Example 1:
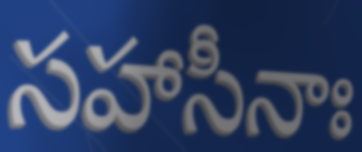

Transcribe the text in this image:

సహాసీనాః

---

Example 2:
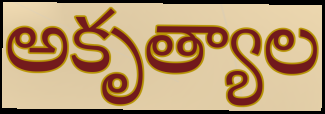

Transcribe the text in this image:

అకృత్యాల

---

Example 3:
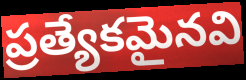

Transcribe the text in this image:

ప్రత్యేకమైనవి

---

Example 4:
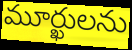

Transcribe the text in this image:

మూర్ఖులను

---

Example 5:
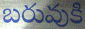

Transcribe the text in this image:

బరువుకి